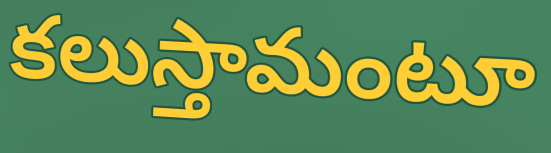
కలుస్తామంటూ